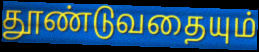
தூண்டுவதையும்